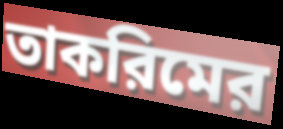
তাকরিমের